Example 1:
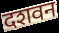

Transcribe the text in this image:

दशवन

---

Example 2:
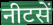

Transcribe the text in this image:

नीटसें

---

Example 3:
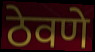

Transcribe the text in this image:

ठेवणे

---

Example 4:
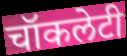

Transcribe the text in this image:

चॉकलेटी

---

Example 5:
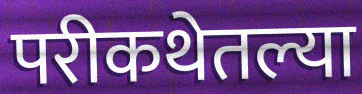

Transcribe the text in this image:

परीकथेतल्या